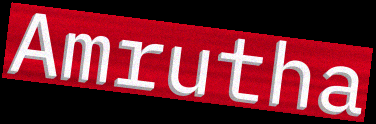
Amrutha